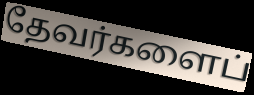
தேவர்களைப்